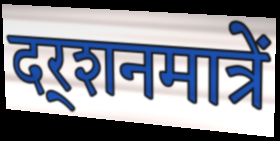
दर्शनमात्रें